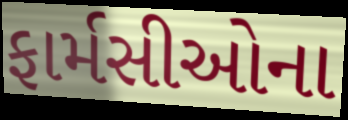
ફાર્મસીઓના